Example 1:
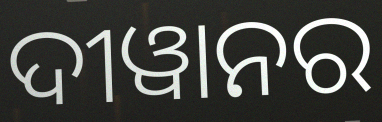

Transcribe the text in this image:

ଦୀୱାନର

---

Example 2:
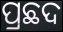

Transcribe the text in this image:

ପ୍ରଛଦ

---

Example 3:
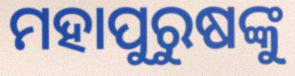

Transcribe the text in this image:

ମହାପୁରୁଷଙ୍କୁ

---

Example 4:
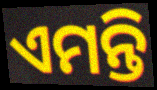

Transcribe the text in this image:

ଏମନ୍ତି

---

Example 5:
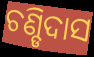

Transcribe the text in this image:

ଚଣ୍ଡିଦାସ